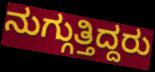
ನುಗ್ಗುತ್ತಿದ್ದರು